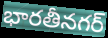
భారతీనగర్